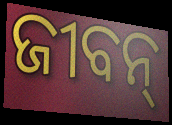
ଜୀବନ୍